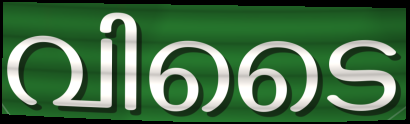
വിടൈ